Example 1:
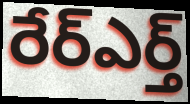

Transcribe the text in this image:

రేర్ఎర్త్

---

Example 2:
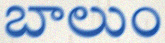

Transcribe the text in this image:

బాలుం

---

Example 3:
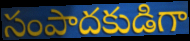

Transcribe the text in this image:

సంపాదకుడిగా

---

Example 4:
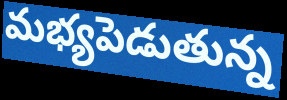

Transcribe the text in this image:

మభ్యపెడుతున్న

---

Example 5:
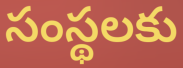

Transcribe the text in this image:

సంస్థలకు